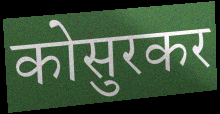
कोसुरकर